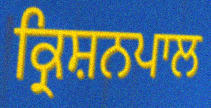
ਕ੍ਰਿਸ਼ਨਪਾਲ